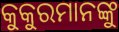
କୁକୁରମାନଙ୍କୁ